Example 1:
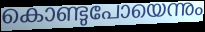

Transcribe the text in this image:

കൊണ്ടുപോയെന്നും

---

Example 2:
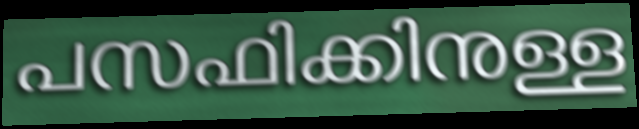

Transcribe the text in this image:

പസഫിക്കിനുള്ള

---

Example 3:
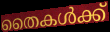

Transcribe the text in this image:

തൈകൾക്ക്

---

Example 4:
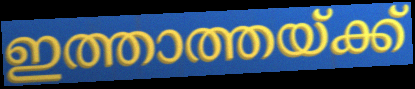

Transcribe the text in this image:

ഇത്താത്തയ്ക്ക്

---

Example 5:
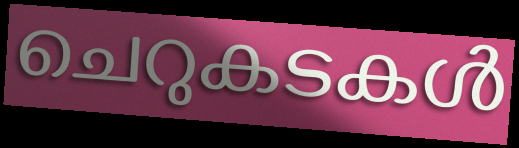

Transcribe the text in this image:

ചെറുകടകൾ